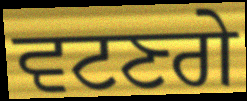
ਵਟਣਗੇ